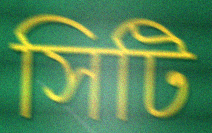
সিটি